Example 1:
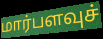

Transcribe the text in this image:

மார்பளவுச்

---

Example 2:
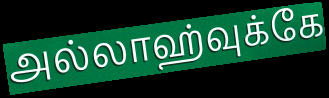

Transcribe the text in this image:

அல்லாஹ்வுக்கே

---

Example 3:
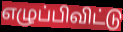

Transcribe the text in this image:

எழுப்பிவிட்டு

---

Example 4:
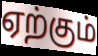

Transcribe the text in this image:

ஏற்கும்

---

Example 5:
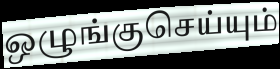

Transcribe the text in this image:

ஒழுங்குசெய்யும்